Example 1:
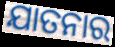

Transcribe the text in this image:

ଯାତନାର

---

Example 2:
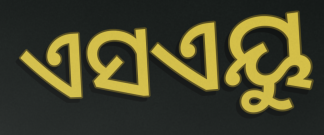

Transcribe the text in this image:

ଏସଏୟୁ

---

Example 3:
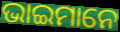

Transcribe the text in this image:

ଭାଇମାନେ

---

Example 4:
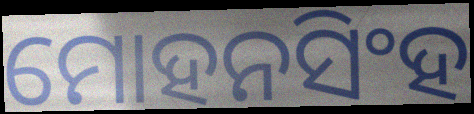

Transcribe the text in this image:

ମୋହନସିଂହ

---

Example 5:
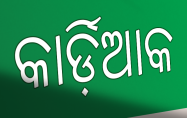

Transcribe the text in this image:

କାର୍ଡ଼ିଆକ